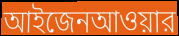
আইজেনআওয়ার